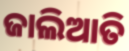
ଜାଲିଆତି